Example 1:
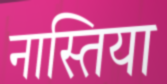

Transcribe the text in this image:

नास्तिया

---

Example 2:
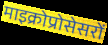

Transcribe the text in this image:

माइक्रोप्रोसेसरों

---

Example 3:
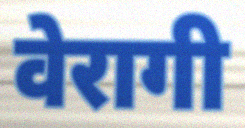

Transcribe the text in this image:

वेरागी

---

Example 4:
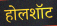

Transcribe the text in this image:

होलशॉट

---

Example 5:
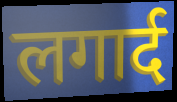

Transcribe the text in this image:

लगार्द